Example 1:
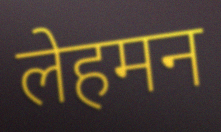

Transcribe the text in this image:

लेहमन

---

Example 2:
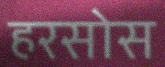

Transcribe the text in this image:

हरसोस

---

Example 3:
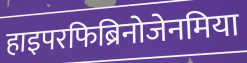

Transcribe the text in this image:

हाइपरफिब्रिनोजेनमिया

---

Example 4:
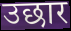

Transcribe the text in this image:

उछार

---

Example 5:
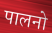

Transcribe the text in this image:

पालनो